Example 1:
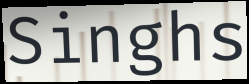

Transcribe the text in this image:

Singhs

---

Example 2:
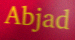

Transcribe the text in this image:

Abjad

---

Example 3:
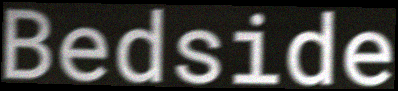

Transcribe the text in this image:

Bedside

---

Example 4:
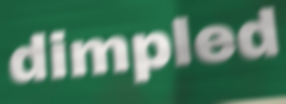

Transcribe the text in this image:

dimpled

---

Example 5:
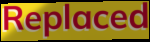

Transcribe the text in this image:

Replaced